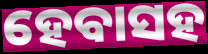
ହେବାସହ